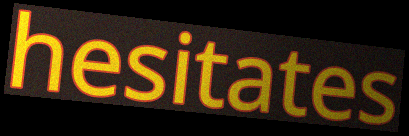
hesitates